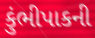
કુંભીપાકની